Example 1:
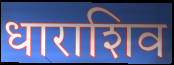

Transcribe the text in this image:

धाराशिव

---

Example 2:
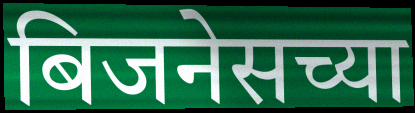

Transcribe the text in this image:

बिजनेसच्या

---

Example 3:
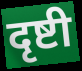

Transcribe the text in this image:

दृष्टी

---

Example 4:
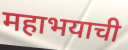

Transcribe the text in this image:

महाभयाची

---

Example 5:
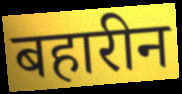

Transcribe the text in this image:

बहारीन